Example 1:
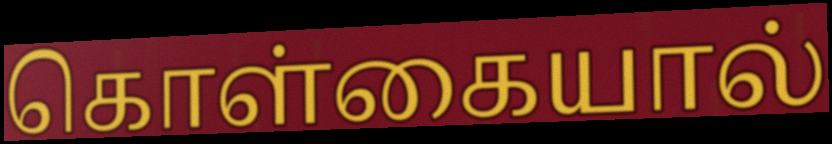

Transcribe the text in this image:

கொள்கையால்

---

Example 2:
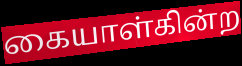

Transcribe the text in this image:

கையாள்கின்ற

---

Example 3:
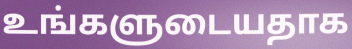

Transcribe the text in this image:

உங்களுடையதாக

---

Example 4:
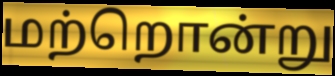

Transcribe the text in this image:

மற்றொன்று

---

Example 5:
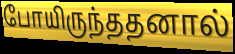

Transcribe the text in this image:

போயிருந்ததனால்